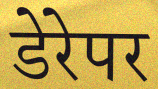
डेरेपर